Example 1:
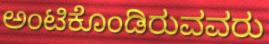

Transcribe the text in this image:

ಅಂಟಿಕೊಂಡಿರುವವರು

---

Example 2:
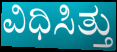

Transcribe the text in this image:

ವಿಧಿಸಿತ್ತು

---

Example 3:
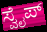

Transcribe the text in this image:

ಸ್ವೈಪ್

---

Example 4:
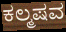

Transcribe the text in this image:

ಕಲ್ಮಷವ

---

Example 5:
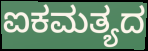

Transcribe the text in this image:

ಐಕಮತ್ಯದ